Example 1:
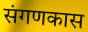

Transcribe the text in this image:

संगणकास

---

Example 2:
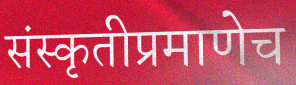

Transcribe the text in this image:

संस्कृतीप्रमाणेच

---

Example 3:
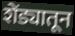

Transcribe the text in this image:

शेंड्यातून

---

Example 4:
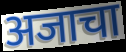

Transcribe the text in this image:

अजाचा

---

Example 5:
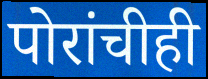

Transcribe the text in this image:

पोरांचीही